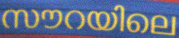
സൗറയിലെ